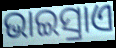
ଭାଇସ୍ରାଏ